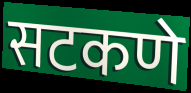
सटकणे